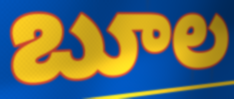
బూల